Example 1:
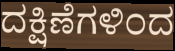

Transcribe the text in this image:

ದಕ್ಷಿಣೆಗಳಿಂದ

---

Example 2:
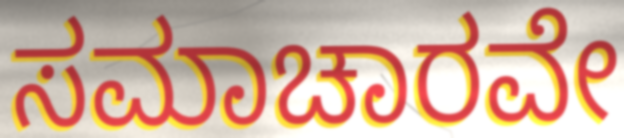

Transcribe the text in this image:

ಸಮಾಚಾರವೇ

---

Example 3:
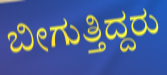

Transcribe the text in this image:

ಬೀಗುತ್ತಿದ್ದರು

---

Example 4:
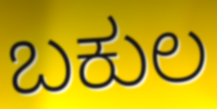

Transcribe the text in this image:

ಬಕುಲ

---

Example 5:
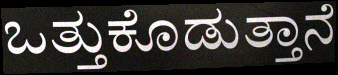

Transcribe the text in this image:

ಒತ್ತುಕೊಡುತ್ತಾನೆ